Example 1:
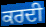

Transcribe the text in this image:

ਕਰਦੀ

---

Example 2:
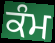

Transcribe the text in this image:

ਕੰਮ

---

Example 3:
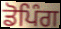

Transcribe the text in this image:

ਡੋਪਿੰਗ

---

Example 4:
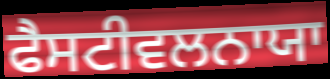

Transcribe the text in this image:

ਫੈਸਟੀਵਲਨਾਯਾ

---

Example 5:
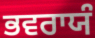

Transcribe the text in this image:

ਭਵਰਾਯੰ